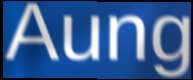
Aung